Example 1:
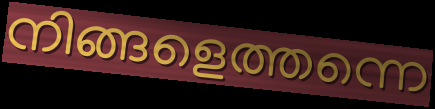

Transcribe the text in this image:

നിങ്ങളെത്തന്നെ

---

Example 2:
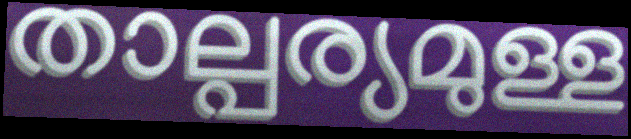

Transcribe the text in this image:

താല്പര്യമുള്ള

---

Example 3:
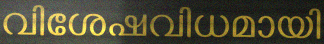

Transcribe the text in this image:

വിശേഷവിധമായി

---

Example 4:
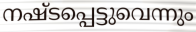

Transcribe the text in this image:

നഷ്ടപ്പെട്ടുവെന്നും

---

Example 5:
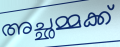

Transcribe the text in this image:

അച്ഛമ്മക്ക്